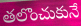
తలొంచుకునే